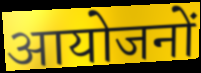
आयोजनों